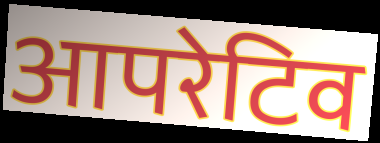
आपरेटिव